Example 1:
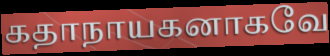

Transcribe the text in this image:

கதாநாயகனாகவே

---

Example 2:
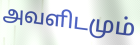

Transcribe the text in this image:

அவளிடமும்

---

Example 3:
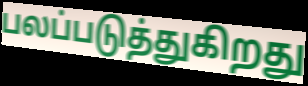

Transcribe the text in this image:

பலப்படுத்துகிறது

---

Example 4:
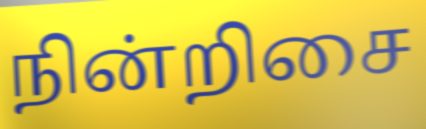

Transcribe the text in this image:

நின்றிசை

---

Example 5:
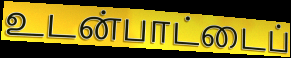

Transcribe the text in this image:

உடன்பாட்டைப்